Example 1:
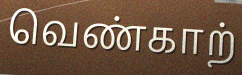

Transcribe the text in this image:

வெண்காற்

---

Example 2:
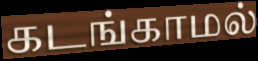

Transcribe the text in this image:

கடங்காமல்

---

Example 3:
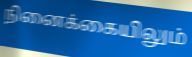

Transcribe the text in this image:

நினைக்கையிலும்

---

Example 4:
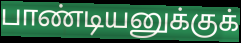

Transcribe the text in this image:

பாண்டியனுக்குக்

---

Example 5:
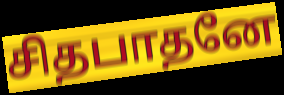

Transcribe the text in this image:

சிதபாதனே